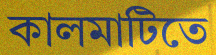
কালমাটিতে